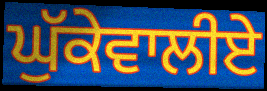
ਘੁੱਕੇਵਾਲੀਏ